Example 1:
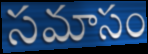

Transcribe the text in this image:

సమాసం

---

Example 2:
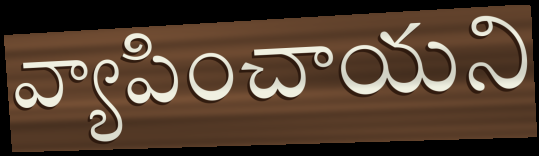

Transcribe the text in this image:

వ్యాపించాయని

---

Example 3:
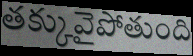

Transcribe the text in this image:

తక్కువైపోతుంది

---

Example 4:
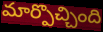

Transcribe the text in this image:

మార్పొచ్చింది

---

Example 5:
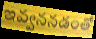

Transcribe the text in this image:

ఇవ్వననడంతో